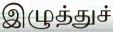
இழுத்துச்